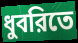
ধুবরিতে